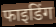
फाइडिंग